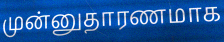
முன்னுதாரணமாக